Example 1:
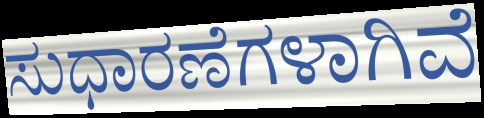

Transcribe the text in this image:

ಸುಧಾರಣೆಗಳಾಗಿವೆ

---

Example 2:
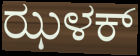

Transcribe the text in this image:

ಝಳಕ್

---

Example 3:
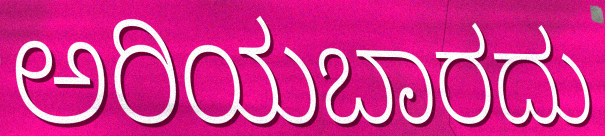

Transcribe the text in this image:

ಅರಿಯಬಾರದು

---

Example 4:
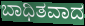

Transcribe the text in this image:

ಬಾಧಿತವಾದ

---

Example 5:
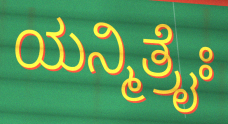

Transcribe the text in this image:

ಯನ್ಮಿತ್ರೈಃ